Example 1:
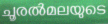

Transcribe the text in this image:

ചൂരൽമലയുടെ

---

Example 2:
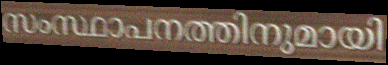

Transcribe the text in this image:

സംസ്ഥാപനത്തിനുമായി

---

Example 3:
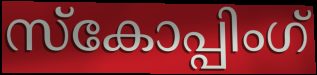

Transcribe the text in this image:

സ്കോപ്പിംഗ്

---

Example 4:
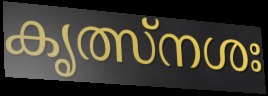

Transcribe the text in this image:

കൃത്സ്നശഃ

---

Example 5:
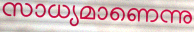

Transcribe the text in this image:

സാധ്യമാണെന്നു